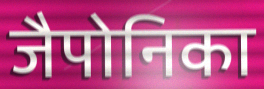
जैपोनिका